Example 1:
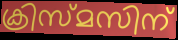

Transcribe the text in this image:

ക്രിസ്മസിന്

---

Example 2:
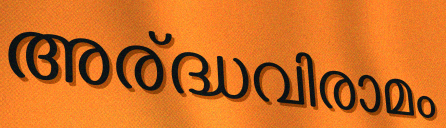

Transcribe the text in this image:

അര്ദ്ധവിരാമം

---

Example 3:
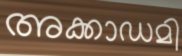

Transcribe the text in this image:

അക്കാഡമി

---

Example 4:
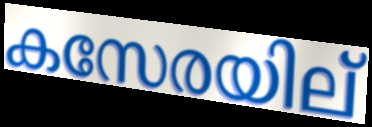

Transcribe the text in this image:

കസേരയില്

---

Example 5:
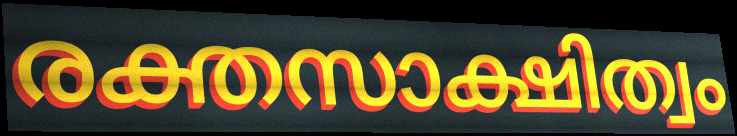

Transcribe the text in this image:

രക്തസാക്ഷിത്വം